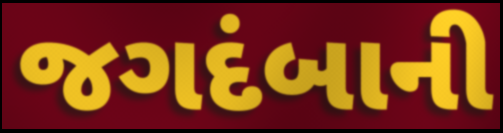
જગદંબાની